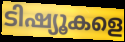
ടിഷ്യൂകളെ